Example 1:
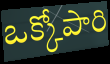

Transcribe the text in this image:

ఒక్కోపారి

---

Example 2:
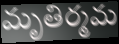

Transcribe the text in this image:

మృతిర్మమ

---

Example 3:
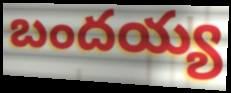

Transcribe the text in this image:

బందయ్య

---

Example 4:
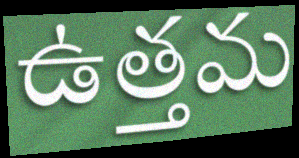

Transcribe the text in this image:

ఉత్తమ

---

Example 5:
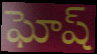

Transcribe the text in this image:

ఘోష్